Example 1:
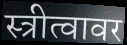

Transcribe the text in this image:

स्त्रीत्वावर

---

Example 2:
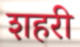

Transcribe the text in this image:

शहरी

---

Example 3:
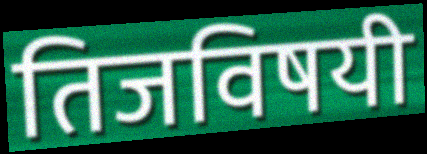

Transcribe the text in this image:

तिजविषयी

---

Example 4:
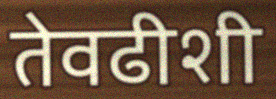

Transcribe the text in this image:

तेवढीशी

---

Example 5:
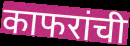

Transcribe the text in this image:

काफरांची